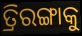
ତ୍ରିରଙ୍ଗାକୁ